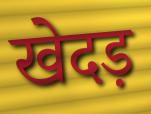
खेदड़